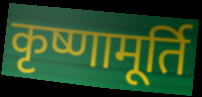
कृष्णामूर्ति